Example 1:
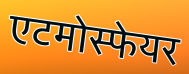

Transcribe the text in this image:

एटमोस्फेयर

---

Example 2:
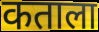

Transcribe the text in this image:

कताला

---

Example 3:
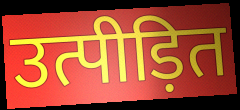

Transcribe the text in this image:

उत्पीड़ित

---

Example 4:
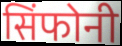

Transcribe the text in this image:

सिंफोनी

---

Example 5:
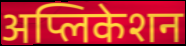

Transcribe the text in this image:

अप्लिकेशन